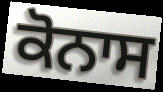
ਕੋਨਾਸ